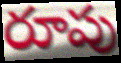
రూపు